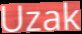
Uzak